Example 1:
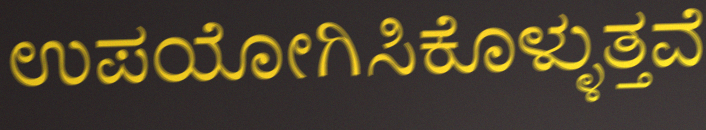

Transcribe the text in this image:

ಉಪಯೋಗಿಸಿಕೊಳ್ಳುತ್ತವೆ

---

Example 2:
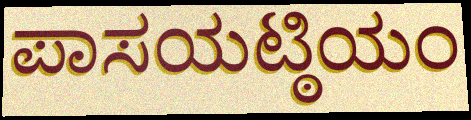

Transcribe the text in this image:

ಪಾಸಯಟ್ಠಿಯಂ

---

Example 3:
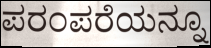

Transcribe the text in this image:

ಪರಂಪರೆಯನ್ನೂ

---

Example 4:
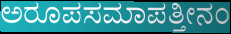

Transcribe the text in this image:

ಅರೂಪಸಮಾಪತ್ತೀನಂ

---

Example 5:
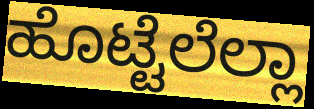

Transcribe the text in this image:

ಹೊಟ್ಟೆಲೆಲ್ಲಾ